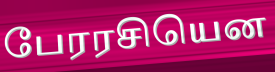
பேரரசியென